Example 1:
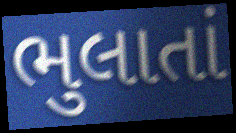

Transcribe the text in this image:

ભુલાતાં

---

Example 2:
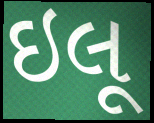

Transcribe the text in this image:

ઇલૂ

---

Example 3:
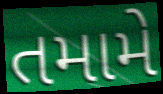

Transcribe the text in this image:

તમામે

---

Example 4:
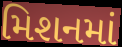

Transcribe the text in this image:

મિશનમાં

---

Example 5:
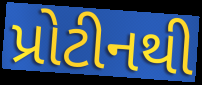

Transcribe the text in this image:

પ્રોટીનથી